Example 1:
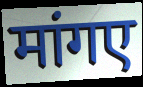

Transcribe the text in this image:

मांगए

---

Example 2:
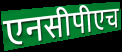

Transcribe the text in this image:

एनसीपीएच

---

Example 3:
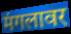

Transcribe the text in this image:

मंगलावर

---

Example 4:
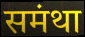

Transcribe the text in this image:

समंथा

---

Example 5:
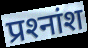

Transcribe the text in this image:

प्रश्‍नांश